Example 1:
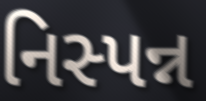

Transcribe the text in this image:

નિસ્પન્ન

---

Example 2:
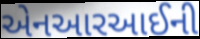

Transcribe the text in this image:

એનઆરઆઈની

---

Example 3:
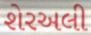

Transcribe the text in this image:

શેરઅલી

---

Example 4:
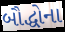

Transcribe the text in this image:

બૌદ્ધોના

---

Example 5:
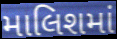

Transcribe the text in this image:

માલિશમાં